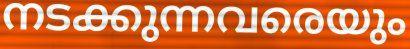
നടക്കുന്നവരെയും